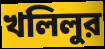
খলিলুর